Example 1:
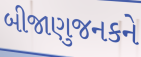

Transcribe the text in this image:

બીજાણુજનકને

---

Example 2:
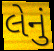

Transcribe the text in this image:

લેનું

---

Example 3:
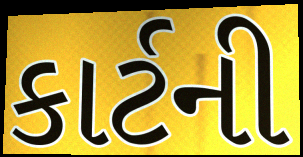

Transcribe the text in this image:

કાર્ટની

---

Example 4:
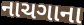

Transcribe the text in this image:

નાચગાના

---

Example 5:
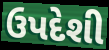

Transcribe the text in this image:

ઉપદેશી